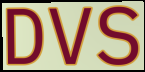
DVS